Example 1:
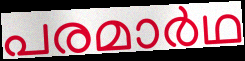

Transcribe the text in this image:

പരമാർഥ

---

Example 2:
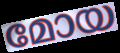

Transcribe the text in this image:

മോയ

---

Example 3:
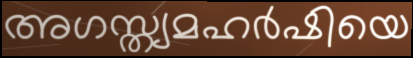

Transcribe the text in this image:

അഗസ്ത്യമഹർഷിയെ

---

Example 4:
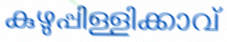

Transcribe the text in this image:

കുഴുപ്പിള്ളിക്കാവ്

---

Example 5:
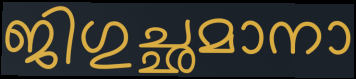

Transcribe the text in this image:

ജിഗുച്ഛമാനാ